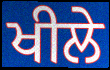
ਖੀਲੇ